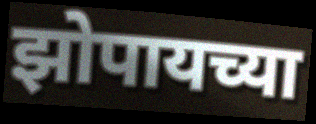
झोपायच्या